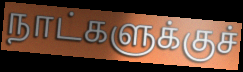
நாட்களுக்குச்